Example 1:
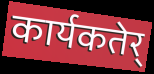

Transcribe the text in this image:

कार्यकतेर्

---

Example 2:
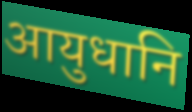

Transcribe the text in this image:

आयुधानि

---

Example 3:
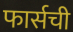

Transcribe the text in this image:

फार्सची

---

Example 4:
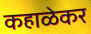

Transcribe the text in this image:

कहाळेकर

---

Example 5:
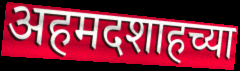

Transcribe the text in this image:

अहमदशाहच्या